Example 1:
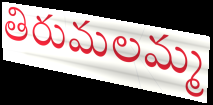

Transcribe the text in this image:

తిరుమలమ్మ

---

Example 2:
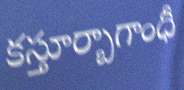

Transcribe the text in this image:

కస్తూర్బాగాంధీ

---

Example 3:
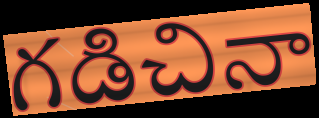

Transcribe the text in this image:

గడిచినా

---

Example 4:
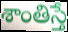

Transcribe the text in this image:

శాంతిస్తే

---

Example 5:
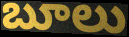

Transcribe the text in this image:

బూలు